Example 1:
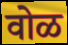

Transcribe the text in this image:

वोळ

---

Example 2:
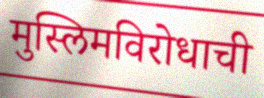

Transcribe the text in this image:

मुस्लिमविरोधाची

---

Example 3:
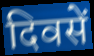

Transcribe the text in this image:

दिवसें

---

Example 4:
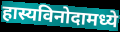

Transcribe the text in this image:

हास्यविनोदामध्ये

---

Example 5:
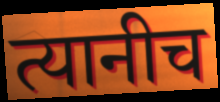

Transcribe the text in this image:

त्यानीच